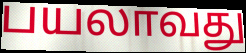
பயலாவது